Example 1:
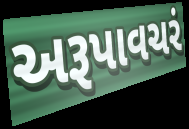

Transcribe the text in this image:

અરૂપાવચરં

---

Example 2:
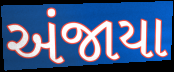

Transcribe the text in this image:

અંજાયા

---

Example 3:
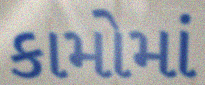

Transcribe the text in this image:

કામોમાં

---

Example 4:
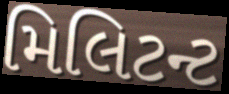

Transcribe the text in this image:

મિલિટન્ટ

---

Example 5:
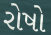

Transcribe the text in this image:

રોષો